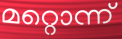
മറ്റൊന്ന്